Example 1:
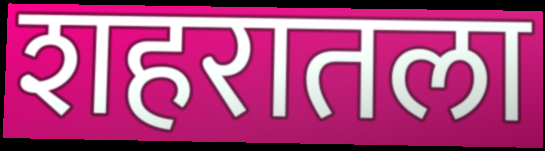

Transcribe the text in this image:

शहरातला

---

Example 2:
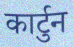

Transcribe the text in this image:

कार्टुन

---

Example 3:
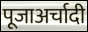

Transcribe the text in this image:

पूजाअर्चादी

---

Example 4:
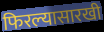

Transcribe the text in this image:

फिरल्यासारखी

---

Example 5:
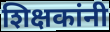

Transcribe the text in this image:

शिक्षकांनी